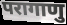
परागाणु